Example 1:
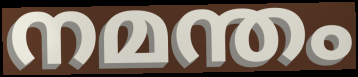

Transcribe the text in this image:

നമന്തം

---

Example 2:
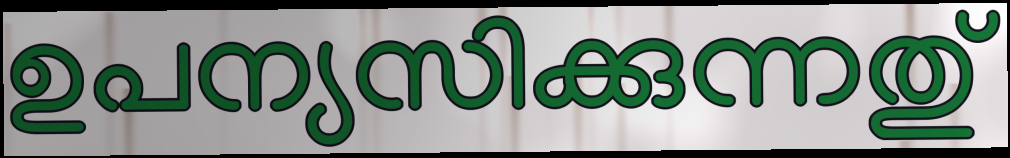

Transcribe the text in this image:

ഉപന്യസിക്കുന്നതു്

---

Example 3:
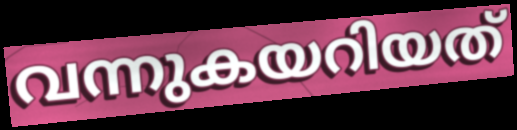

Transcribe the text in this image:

വന്നുകയറിയത്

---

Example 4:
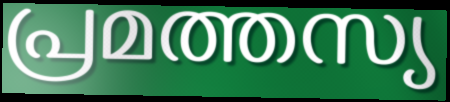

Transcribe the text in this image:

പ്രമത്തസ്യ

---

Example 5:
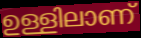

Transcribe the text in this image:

ഉള്ളിലാണ്